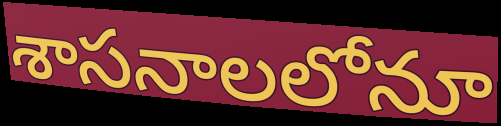
శాసనాలలోనూ